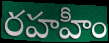
రహహీం